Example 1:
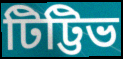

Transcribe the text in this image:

টিট্টিভ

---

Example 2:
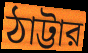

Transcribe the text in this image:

ঠাট্টার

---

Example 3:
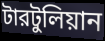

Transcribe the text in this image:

টারটুলিয়ান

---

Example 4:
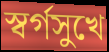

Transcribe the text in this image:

স্বর্গসুখে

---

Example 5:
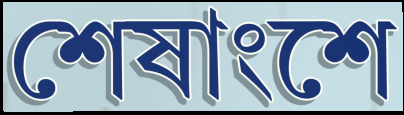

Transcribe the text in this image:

শেষাংশে